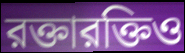
রক্তারক্তিও